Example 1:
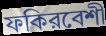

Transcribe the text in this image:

ফকিরবেশী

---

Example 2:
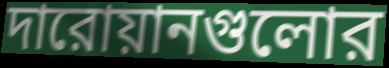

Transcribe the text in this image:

দারোয়ানগুলোর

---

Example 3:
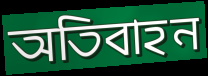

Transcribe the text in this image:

অতিবাহন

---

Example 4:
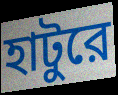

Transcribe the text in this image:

হাটুরে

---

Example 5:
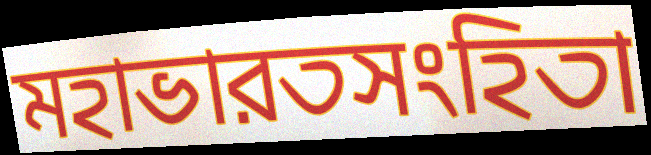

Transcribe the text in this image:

মহাভারতসংহিতা